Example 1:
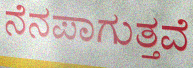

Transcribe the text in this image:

ನೆನಪಾಗುತ್ತವೆ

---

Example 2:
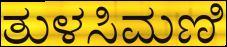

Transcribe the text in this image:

ತುಳಸಿಮಣಿ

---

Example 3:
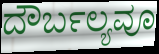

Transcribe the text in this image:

ದೌರ್ಬಲ್ಯವೂ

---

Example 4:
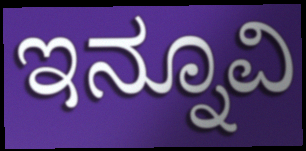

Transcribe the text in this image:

ಇನ್ನೂವಿ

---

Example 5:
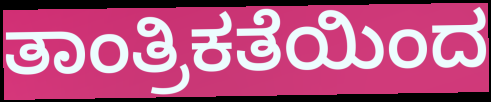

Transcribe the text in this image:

ತಾಂತ್ರಿಕತೆಯಿಂದ